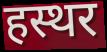
हस्थर